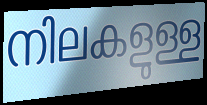
നിലകളുള്ള